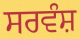
ਸਰਵੰਸ਼